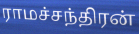
ராமச்சந்திரன்